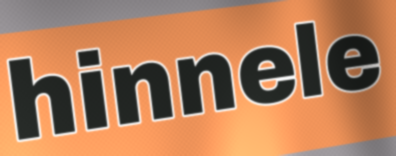
hinnele